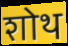
शोथ